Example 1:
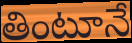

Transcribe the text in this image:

తింటూనే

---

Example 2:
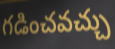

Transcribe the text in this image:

గడించవచ్చు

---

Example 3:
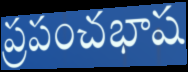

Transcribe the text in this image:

ప్రపంచభాష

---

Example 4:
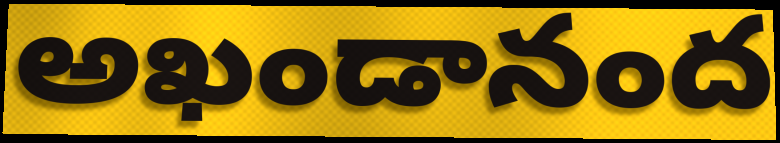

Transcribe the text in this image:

అఖండానంద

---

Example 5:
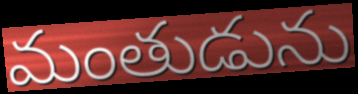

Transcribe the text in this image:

మంతుడును